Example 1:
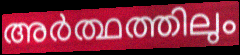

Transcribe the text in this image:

അർത്ഥത്തിലും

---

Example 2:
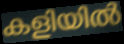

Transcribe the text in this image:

കളിയിൽ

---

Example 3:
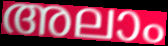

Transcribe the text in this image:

അലാം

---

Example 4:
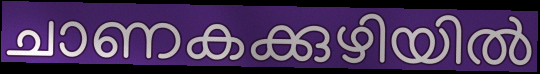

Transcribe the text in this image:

ചാണകക്കുഴിയിൽ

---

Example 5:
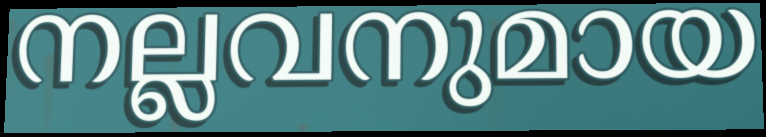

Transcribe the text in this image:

നല്ലവനുമായ